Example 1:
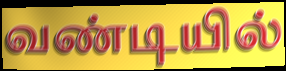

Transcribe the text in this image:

வண்டியில்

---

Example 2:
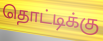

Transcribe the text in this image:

தொட்டிக்கு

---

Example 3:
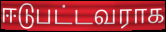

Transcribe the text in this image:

ஈடுபட்டவராக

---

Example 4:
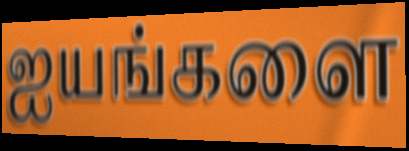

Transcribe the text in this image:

ஐயங்களை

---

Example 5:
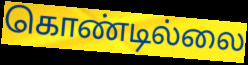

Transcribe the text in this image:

கொண்டில்லை